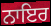
ਨਾਇਰ